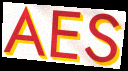
AES